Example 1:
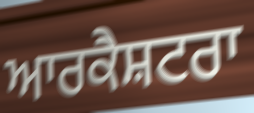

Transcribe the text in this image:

ਆਰਕੈਸ਼ਟਰਾ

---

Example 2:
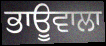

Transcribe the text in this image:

ਭਾਊਵਾਲਾ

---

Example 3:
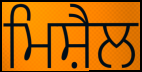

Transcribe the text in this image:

ਮਿਸ਼ੈਲ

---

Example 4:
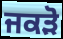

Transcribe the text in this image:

ਜਕੜੋ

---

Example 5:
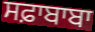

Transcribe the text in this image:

ਸਫ਼ਾਬਾਬਾ